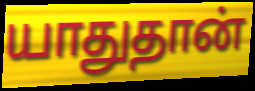
யாதுதான்